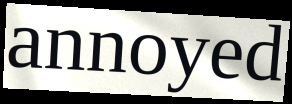
annoyed